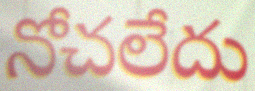
నోచలేదు